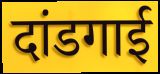
दांडगाई